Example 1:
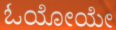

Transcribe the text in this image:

ಓಯೋಯೇ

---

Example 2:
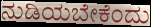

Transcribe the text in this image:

ನುಡಿಯಬೇಕೆಂದು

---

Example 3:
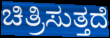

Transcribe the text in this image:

ಚಿತ್ರಿಸುತ್ತದೆ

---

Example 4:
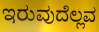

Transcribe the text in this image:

ಇರುವುದೆಲ್ಲವ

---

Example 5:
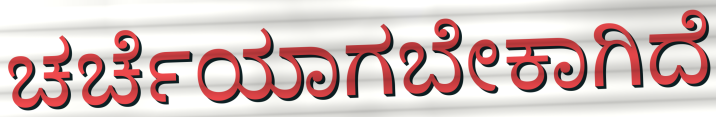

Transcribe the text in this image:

ಚರ್ಚೆಯಾಗಬೇಕಾಗಿದೆ